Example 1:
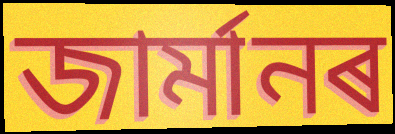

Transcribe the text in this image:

জাৰ্মানৰ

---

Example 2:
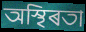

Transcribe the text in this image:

অস্থিৰতা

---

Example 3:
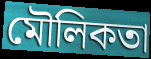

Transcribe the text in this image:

মৌলিকতা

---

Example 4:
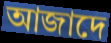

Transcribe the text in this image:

আজাদে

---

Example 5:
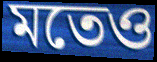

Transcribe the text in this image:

মতেও